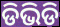
ଡିଭିଡି